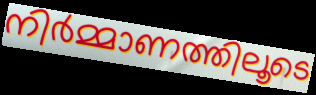
നിർമ്മാണത്തിലൂടെ